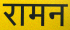
रामन